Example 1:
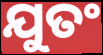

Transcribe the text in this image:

ଯୁତଂ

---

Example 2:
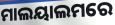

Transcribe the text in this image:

ମାଲୟାଲମରେ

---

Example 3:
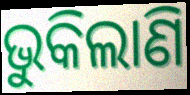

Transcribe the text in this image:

ଭୁକିଲାଣି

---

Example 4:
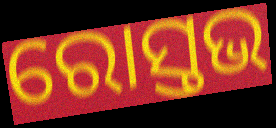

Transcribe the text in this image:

ରୋସ୍ତଭ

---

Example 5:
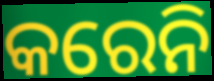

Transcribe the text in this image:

କରେନି